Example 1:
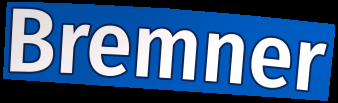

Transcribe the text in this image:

Bremner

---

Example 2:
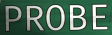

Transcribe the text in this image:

PROBE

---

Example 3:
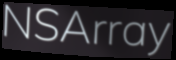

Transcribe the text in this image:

NSArray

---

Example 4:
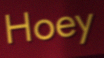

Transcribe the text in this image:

Hoey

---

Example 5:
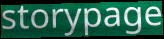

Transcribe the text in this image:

storypage